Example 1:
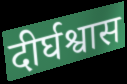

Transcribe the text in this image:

दीर्घश्वास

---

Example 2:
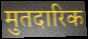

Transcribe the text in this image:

मुतदारिक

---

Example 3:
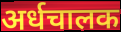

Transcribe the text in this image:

अर्धचालक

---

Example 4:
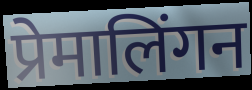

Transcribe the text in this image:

प्रेमालिंगन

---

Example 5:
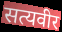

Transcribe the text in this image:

सत्यवीर